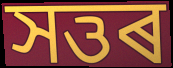
সত্তৰ